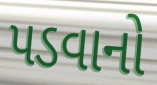
પડવાનો